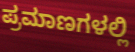
ಪ್ರಮಾಣಗಳಲ್ಲಿ